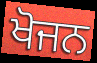
ਖੋਜਨ